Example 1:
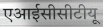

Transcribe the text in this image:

एआईसीसीटीयू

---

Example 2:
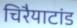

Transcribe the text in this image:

चिरैयाटांड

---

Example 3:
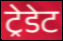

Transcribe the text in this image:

ट्रेडेट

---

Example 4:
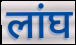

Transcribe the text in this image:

लांघ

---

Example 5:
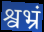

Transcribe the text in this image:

श्वभ्रं